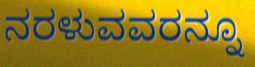
ನರಳುವವರನ್ನೂ